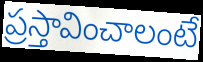
ప్రస్తావించాలంటే